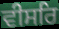
ਵੀਸਰਿ